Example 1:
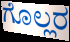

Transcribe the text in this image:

ಗೊಲ್ಲರ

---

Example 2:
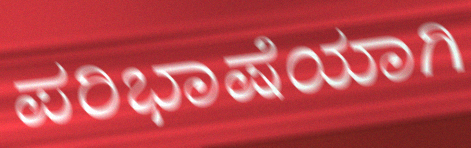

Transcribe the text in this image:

ಪರಿಭಾಷೆಯಾಗಿ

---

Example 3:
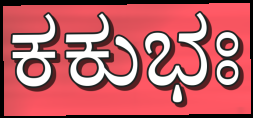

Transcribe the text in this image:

ಕಕುಭಃ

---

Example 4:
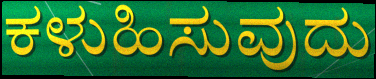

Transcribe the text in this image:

ಕಳುಹಿಸುವುದು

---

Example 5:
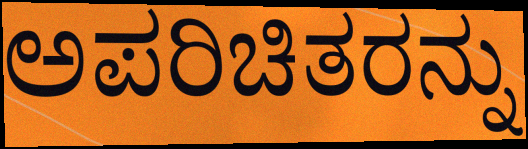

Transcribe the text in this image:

ಅಪರಿಚಿತರನ್ನು